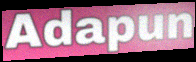
Adapun